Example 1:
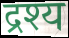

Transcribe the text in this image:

द्रश्य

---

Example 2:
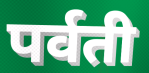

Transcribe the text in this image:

पर्वती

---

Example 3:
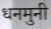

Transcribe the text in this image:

धनमुनी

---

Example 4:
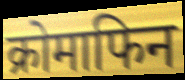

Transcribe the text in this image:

क्रोमाफिन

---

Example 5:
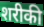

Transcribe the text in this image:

शरीकी